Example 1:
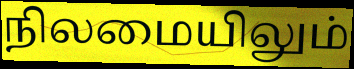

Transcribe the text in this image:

நிலமையிலும்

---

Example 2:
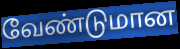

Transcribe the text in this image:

வேண்டுமான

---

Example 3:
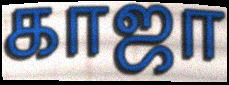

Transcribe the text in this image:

காஜா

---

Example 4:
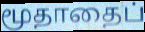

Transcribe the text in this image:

மூதாதைப்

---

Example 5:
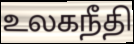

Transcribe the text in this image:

உலகநீதி